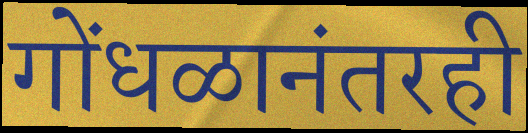
गोंधळानंतरही